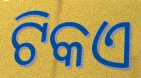
ଟିକଏ